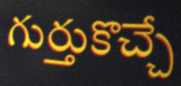
గుర్తుకొచ్చే